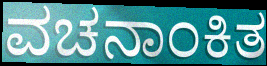
ವಚನಾಂಕಿತ